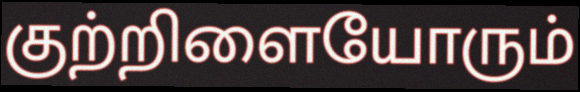
குற்றிளையோரும்